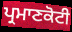
ਪ੍ਰਮਾਣਕੋਟੀ